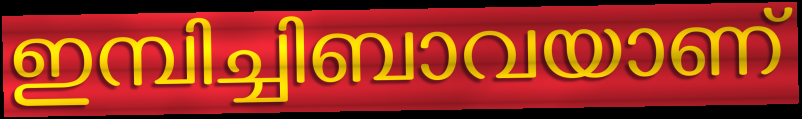
ഇമ്പിച്ചിബാവയാണ്